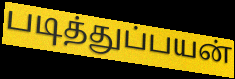
படித்துப்பயன்